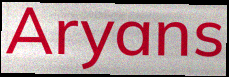
Aryans